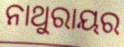
ନାଥୁରାୟର